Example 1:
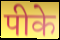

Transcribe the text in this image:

पीके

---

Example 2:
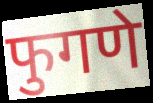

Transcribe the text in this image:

फुगणे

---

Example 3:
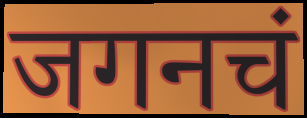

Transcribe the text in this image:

जगनचं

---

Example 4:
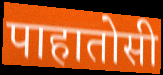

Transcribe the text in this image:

पाहातोसी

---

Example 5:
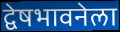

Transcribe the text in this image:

द्वेषभावनेला